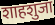
शाहशुजा